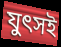
যুৎসই